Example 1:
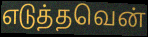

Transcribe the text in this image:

எடுத்தவென்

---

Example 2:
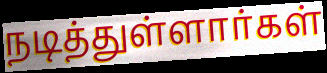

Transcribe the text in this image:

நடித்துள்ளார்கள்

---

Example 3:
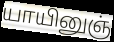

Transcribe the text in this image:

யாயினுஞ்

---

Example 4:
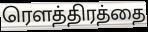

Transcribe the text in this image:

ரௌத்திரத்தை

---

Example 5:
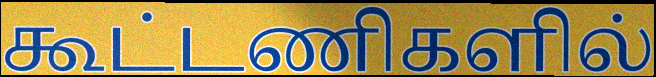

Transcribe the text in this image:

கூட்டணிகளில்